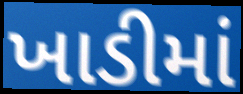
ખાડીમાં